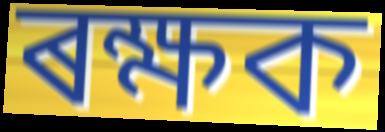
ৰক্ষক